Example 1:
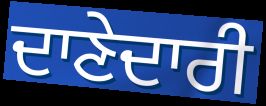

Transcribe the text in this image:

ਦਾਣੇਦਾਰੀ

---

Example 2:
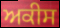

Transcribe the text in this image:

ਅਕੀਸ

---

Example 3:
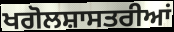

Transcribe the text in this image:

ਖਗੋਲਸ਼ਾਸਤਰੀਆਂ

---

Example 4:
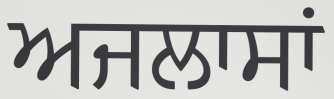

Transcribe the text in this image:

ਅਜਲਾਸਾਂ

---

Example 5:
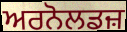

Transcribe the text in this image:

ਅਰਨੋਲਡਜ਼